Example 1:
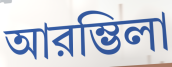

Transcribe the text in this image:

আরম্ভিলা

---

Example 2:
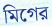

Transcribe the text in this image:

মিগের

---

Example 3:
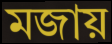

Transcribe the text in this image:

মজায়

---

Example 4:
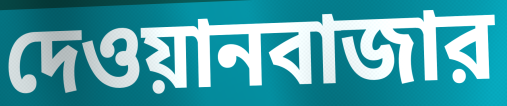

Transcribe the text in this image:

দেওয়ানবাজার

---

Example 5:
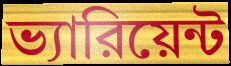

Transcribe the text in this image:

ভ্যারিয়েন্ট